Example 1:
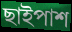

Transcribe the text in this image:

ছাইপাশ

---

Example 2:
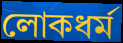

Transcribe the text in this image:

লোকধর্ম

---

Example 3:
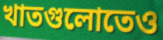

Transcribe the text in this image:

খাতগুলোতেও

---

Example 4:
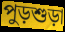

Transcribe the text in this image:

পুড়শুড়া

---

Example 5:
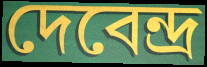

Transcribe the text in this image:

দেবেন্দ্র